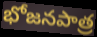
భోజనపాత్ర